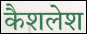
कैशलेश